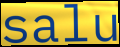
salu